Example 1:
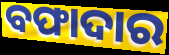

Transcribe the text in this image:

ବଫାଦାର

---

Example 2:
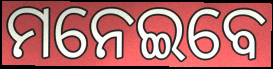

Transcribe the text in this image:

ମନେଇବେ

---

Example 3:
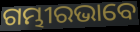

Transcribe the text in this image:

ଗମ୍ଭୀରଭାବେ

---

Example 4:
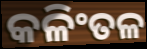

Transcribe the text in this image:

କଳିଂତଳ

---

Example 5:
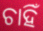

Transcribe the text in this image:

ଚାହିଁ